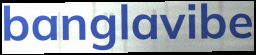
banglavibe